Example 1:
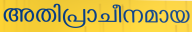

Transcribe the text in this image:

അതിപ്രാചീനമായ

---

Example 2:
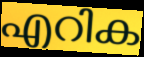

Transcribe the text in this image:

എറിക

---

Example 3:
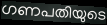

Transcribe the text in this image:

ഗണപതിയുടെ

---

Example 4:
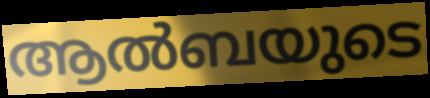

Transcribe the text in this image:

ആൽബയുടെ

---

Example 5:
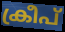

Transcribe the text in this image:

ക്രീപ്